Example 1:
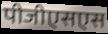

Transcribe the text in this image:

पीजीएसएस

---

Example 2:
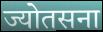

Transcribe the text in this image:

ज्योतसना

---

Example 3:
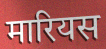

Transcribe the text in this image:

मारियस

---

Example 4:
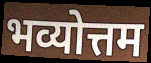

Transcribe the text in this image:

भव्योत्तम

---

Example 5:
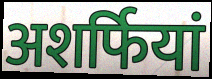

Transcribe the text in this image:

अशर्फियां